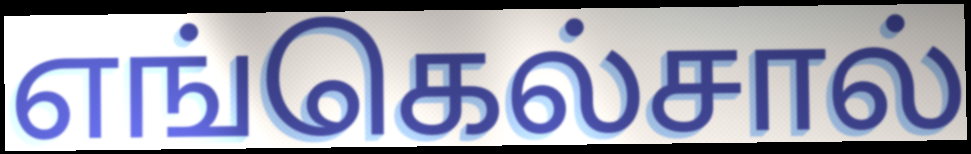
எங்கெல்சால்